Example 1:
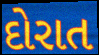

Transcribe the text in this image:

દોરાત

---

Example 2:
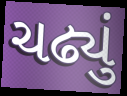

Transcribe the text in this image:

ચઢ્યું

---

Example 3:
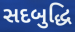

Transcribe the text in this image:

સદબુદ્ધિ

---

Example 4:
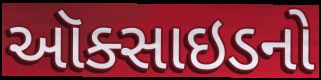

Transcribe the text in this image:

ઑક્સાઇડનો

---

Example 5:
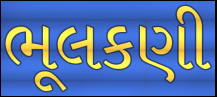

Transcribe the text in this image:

ભૂલકણી